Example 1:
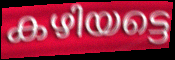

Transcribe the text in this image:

കഴിയട്ടെ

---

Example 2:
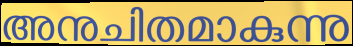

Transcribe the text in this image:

അനുചിതമാകുന്നു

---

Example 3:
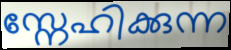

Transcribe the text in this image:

സ്നേഹിക്കുന്ന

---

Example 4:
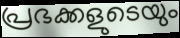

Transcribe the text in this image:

പ്രഭക്കളുടെയും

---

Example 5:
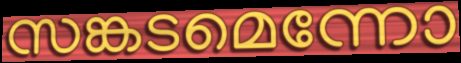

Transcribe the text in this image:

സങ്കടമെന്നോ